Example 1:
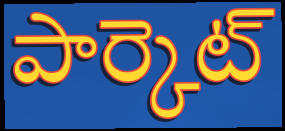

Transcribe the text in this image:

పార్కెట్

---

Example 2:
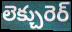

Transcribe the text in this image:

లెక్చురెర్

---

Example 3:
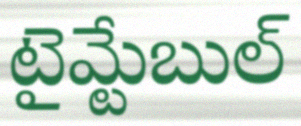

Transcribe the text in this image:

టైమ్టేబుల్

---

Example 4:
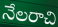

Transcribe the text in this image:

నేలరాచి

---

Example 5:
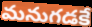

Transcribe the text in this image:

మనుగడకే